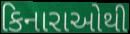
કિનારાઓથી